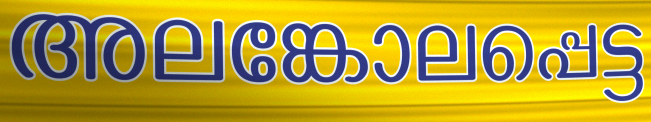
അലങ്കോലപ്പെട്ട